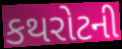
કથરોટની